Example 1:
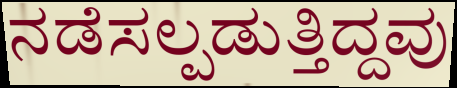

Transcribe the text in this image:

ನಡೆಸಲ್ಪಡುತ್ತಿದ್ದವು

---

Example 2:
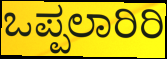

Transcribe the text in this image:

ಒಪ್ಪಲಾರಿರಿ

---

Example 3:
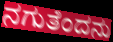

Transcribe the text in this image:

ನಗುತೆಂದನು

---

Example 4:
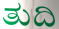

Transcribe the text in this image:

ತುದಿ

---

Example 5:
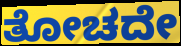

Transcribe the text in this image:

ತೋಚದೇ